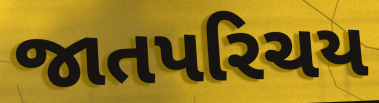
જાતપરિચય